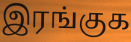
இரங்குக